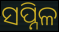
ସପ୍ନିଳ